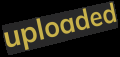
uploaded